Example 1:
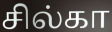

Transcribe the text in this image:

சில்கா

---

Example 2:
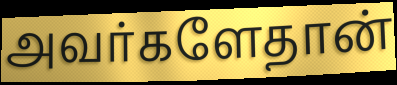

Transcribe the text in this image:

அவர்களேதான்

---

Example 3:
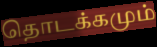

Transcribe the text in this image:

தொடக்கமும்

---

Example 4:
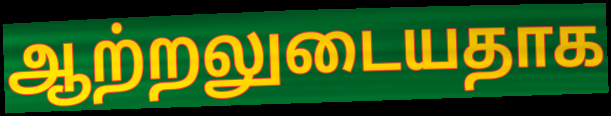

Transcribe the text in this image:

ஆற்றலுடையதாக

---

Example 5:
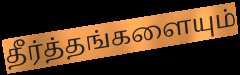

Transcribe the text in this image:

தீர்த்தங்களையும்